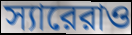
স্যারেরাও